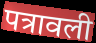
पत्रावली